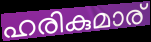
ഹരികുമാര്